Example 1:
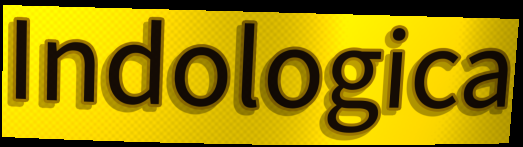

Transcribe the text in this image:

Indologica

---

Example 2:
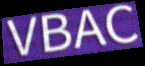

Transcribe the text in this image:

VBAC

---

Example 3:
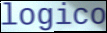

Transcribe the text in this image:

logico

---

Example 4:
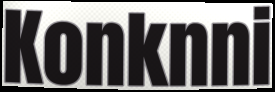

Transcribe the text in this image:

Konknni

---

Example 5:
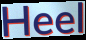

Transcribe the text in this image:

Heel